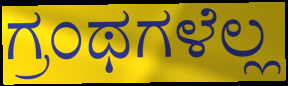
ಗ್ರಂಥಗಳೆಲ್ಲ